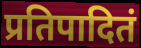
प्रतिपादितं